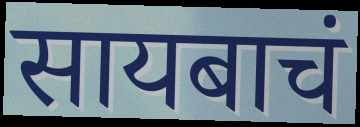
सायबाचं